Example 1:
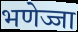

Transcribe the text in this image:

भणेज्जा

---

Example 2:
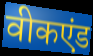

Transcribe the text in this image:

वीकएंड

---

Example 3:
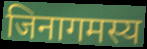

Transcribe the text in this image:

जिनागमस्य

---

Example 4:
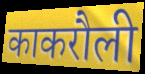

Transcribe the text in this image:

काकरौली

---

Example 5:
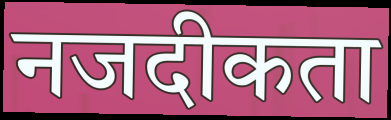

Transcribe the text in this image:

नजदीकता